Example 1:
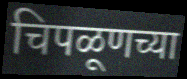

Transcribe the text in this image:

चिपळूणच्या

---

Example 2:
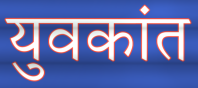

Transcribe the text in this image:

युवकांत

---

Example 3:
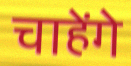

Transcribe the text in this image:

चाहेंगे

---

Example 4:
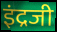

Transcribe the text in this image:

इंद्रजी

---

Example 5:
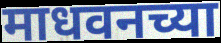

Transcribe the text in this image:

माधवनच्या